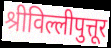
श्रीविल्लीपुत्तूर